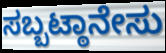
ಸಬ್ಬಟ್ಠಾನೇಸು